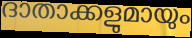
ദാതാക്കളുമായും